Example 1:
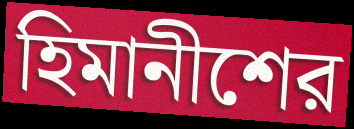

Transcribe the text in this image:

হিমানীশের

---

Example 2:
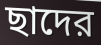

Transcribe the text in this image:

ছাদের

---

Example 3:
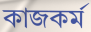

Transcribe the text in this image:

কাজকর্ম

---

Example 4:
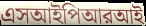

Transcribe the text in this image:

এসআইপিআরআই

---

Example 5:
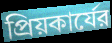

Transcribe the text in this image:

প্রিয়কার্যের